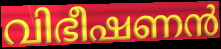
വിഭീഷണൻ